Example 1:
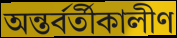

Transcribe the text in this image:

অন্তর্বর্তীকালীণ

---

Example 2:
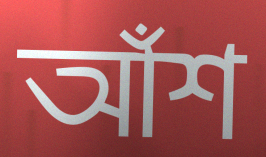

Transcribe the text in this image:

আঁশ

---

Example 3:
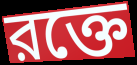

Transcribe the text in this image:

রক্তে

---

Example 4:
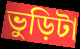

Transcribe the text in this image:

ভুড়িটা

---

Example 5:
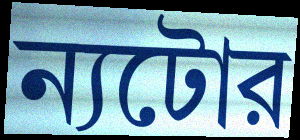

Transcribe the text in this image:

ন্যটোর